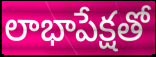
లాభాపేక్షతో